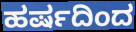
ಹರ್ಷದಿಂದ